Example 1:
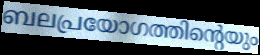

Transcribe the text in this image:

ബലപ്രയോഗത്തിന്റെയും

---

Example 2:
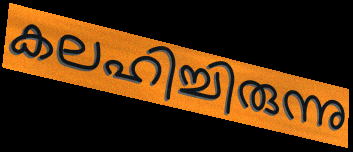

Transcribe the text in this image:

കലഹിച്ചിരുന്നു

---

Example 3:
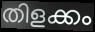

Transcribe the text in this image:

തിളക്കം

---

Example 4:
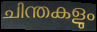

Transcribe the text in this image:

ചിന്തകളും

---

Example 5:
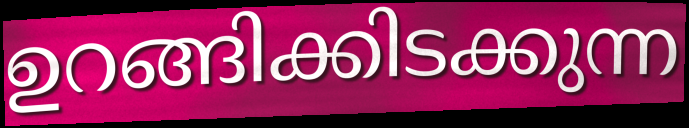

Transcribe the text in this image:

ഉറങ്ങിക്കിടക്കുന്ന